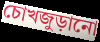
চোখজুড়ানো